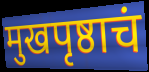
मुखपृष्ठाचं